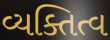
વ્યક્તિત્વ